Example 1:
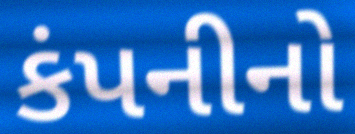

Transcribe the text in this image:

કંપનીનો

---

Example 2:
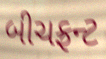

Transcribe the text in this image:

બીચફ્રન્ટ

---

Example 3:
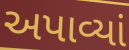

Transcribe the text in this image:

અપાવ્યાં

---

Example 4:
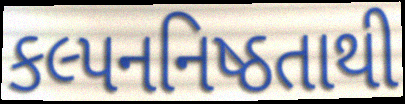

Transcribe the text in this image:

કલ્પનનિષ્ઠતાથી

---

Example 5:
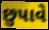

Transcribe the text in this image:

છુપાવે